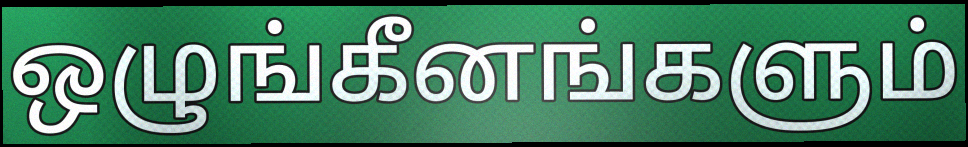
ஒழுங்கீனங்களும்